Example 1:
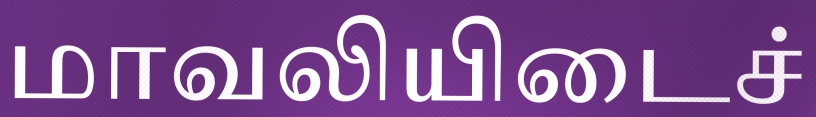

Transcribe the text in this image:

மாவலியிடைச்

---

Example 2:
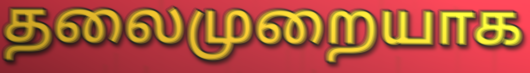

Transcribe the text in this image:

தலைமுறையாக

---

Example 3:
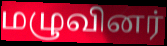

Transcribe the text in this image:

மழுவினர்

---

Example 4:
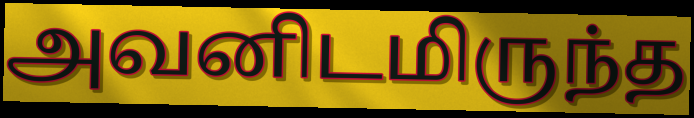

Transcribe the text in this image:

அவனிடமிருந்த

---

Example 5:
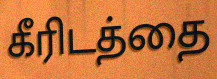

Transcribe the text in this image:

கீரிடத்தை